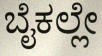
ಬೈಕಲ್ಲೇ